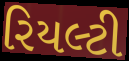
રિયલ્ટી